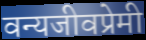
वन्यजीवप्रेमी